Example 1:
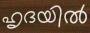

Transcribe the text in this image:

ഹൃദയിൽ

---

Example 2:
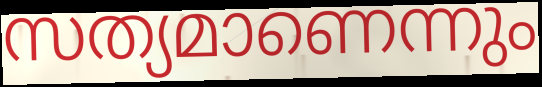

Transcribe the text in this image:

സത്യമാണെന്നും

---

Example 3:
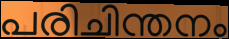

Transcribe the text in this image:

പരിചിന്തനം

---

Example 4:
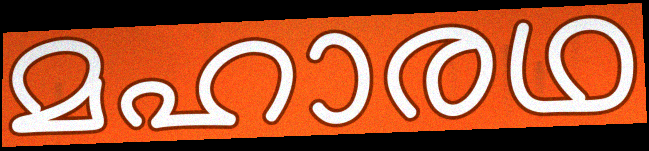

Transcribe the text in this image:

മഹാരഥ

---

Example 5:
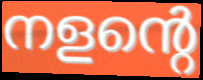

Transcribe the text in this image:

നളന്റെ